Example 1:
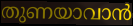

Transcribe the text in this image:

തുണയാവാൻ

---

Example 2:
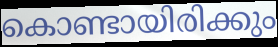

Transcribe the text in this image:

കൊണ്ടായിരിക്കും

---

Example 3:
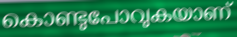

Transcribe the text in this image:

കൊണ്ടുപോവുകയാണ്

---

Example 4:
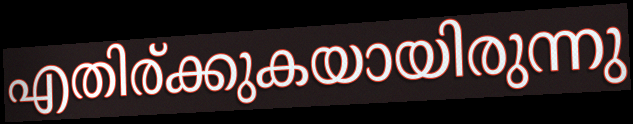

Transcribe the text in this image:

എതിര്ക്കുകയായിരുന്നു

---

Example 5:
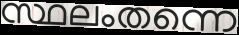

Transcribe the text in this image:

സ്ഥലംതന്നെ